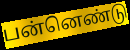
பன்னெண்டு